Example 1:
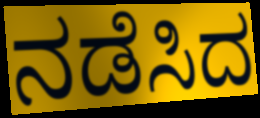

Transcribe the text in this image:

ನಡೆಸಿದ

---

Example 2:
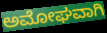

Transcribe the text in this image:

ಅಮೋಘವಾಗಿ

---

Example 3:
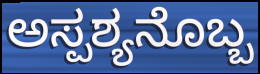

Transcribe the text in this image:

ಅಸ್ಪಶ್ಯನೊಬ್ಬ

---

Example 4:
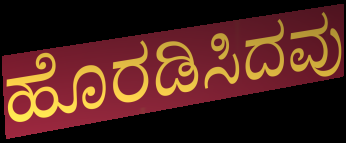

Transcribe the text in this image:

ಹೊರಡಿಸಿದವು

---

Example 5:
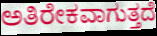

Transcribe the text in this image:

ಅತಿರೇಕವಾಗುತ್ತದೆ